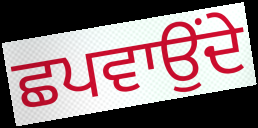
ਛਪਵਾਉਂਦੇ